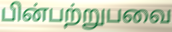
பின்பற்றுபவை